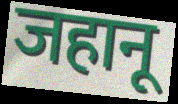
जहानू